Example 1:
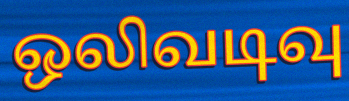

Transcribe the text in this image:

ஒலிவடிவு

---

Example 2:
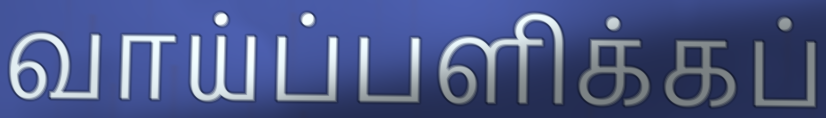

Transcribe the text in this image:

வாய்ப்பளிக்கப்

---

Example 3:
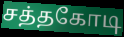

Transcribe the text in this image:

சத்தகோடி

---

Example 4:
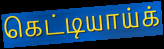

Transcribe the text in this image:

கெட்டியாய்க்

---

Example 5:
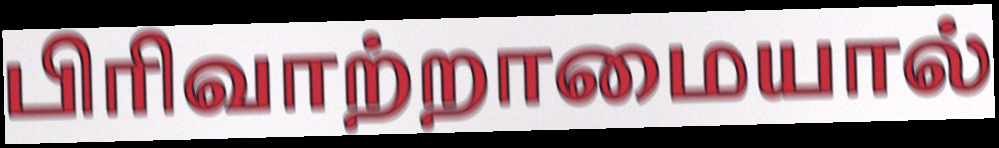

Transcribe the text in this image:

பிரிவாற்றாமையால்